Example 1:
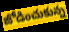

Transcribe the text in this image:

జోడించుకున్న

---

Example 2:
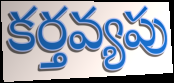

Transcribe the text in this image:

కర్తవ్యపు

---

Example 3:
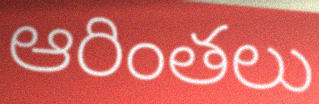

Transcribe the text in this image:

ఆరింతలు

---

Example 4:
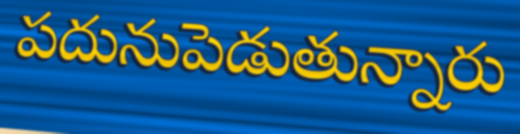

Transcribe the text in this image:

పదునుపెడుతున్నారు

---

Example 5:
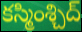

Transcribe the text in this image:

కస్మింశ్చిద్